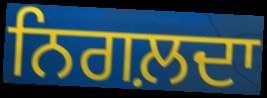
ਨਿਗਲ਼ਦਾ